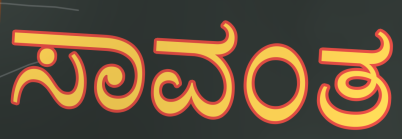
ಸಾವಂತ